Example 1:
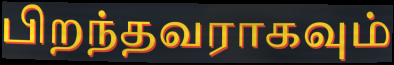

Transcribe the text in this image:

பிறந்தவராகவும்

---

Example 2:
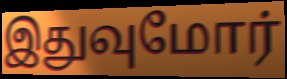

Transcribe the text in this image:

இதுவுமோர்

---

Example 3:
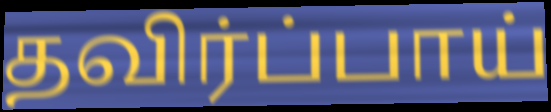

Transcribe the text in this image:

தவிர்ப்பாய்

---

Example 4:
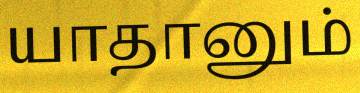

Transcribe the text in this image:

யாதானும்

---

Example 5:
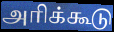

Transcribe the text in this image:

அரிக்கூடு